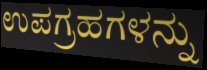
ಉಪಗ್ರಹಗಳನ್ನು